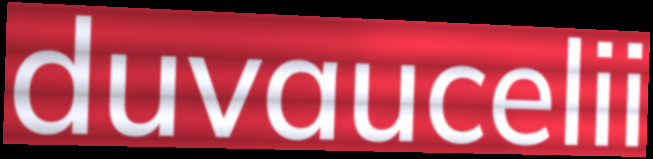
duvaucelii